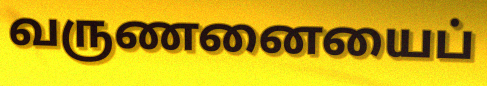
வருணனையைப்